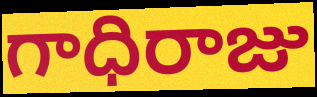
గాధిరాజు